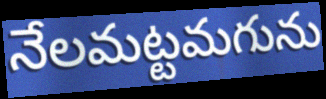
నేలమట్టమగును